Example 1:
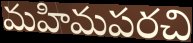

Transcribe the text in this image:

మహిమపరచి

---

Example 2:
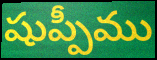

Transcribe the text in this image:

షుప్పీము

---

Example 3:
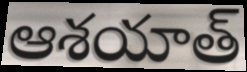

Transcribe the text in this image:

ఆశయాత్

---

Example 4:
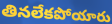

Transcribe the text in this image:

తినలేకపోయారు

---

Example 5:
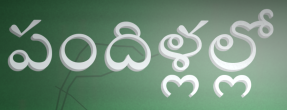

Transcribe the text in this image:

పందిళ్లల్లో